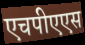
एचपीएएस